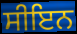
ਸੀਇਨ